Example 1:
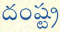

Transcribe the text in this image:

దంష్ట్ర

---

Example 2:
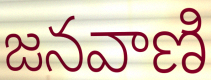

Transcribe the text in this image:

జనవాణి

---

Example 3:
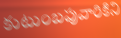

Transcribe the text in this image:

కుటుంబపువారికిని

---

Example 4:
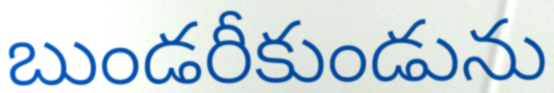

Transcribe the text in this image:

బుండరీకుండును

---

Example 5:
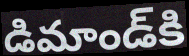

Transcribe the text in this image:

డిమాండ్‌కి